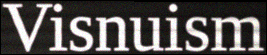
Visnuism